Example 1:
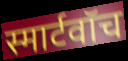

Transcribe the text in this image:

स्मार्टवॉच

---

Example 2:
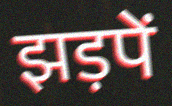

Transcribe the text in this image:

झड़पें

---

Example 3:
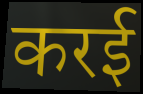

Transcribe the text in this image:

करई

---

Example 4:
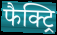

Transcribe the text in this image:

फैक्ट्रि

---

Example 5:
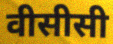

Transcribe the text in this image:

वीसीसी